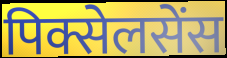
पिक्सेलसेंस